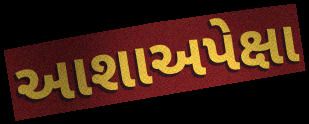
આશાઅપેક્ષા